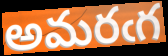
అమరఁగ